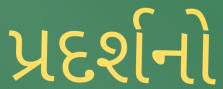
પ્રદર્શનો